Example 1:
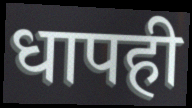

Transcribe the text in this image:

धापही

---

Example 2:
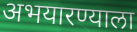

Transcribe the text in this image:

अभयारण्याला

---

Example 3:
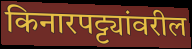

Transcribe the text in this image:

किनारपट्ट्यांवरील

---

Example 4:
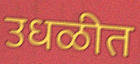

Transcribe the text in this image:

उधळीत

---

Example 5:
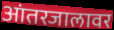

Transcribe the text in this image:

आंतरजालावर